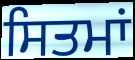
ਸਿਤਮਾਂ